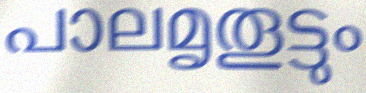
പാലമൃതൂട്ടും